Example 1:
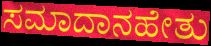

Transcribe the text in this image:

ಸಮಾದಾನಹೇತು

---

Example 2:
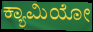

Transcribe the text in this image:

ಕ್ಯಾಮಿಯೋ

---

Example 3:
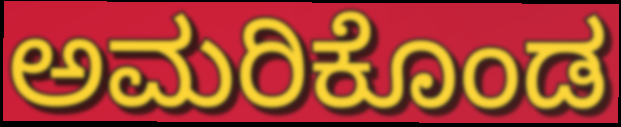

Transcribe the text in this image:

ಅಮರಿಕೊಂಡ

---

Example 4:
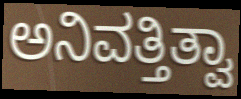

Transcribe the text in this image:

ಅನಿವತ್ತಿತ್ವಾ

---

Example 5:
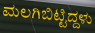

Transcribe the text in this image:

ಮಲಗಿಬಿಟ್ಟಿದ್ದಳು